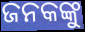
ଜନକଙ୍କୁ